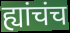
ह्यांचंच